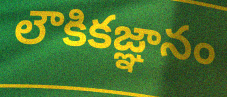
లౌకికజ్ఞానం